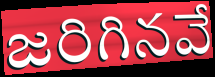
జరిగినవే